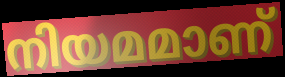
നിയമമാണ്